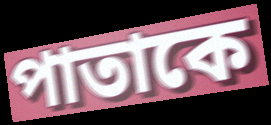
পাতাকে